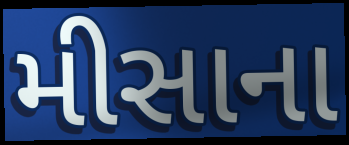
મીસાના